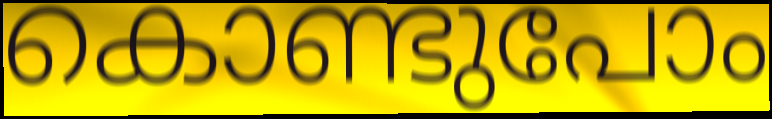
കൊണ്ടുപോം